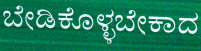
ಬೇಡಿಕೊಳ್ಳಬೇಕಾದ